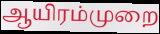
ஆயிரம்முறை